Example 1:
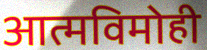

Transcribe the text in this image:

आत्मविमोही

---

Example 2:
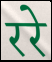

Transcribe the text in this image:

ररे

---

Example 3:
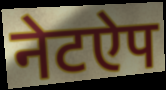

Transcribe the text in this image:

नेटऐप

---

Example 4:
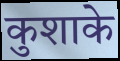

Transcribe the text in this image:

कुशाके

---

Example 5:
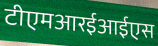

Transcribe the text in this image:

टीएमआरईआईएस